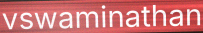
vswaminathan